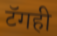
टॅगही